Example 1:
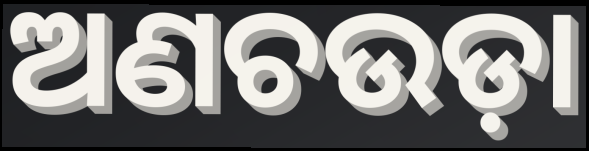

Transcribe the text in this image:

ଅଣଚଉଡ଼ା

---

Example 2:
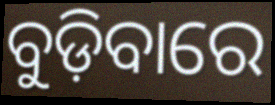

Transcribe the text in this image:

ବୁଡ଼ିବାରେ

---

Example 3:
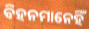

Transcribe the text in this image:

ବିହନମାନେହିଁ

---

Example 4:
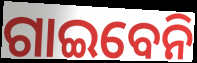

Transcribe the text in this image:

ଗାଇବେନି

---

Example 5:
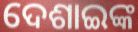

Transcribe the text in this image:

ଦେଶାଇଙ୍କ